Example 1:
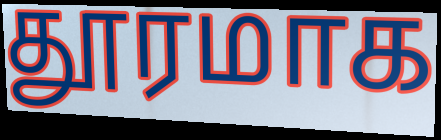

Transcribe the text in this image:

தூரமாக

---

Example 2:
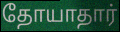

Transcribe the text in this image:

தோயாதார்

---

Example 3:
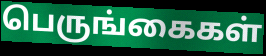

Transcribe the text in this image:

பெருங்கைகள்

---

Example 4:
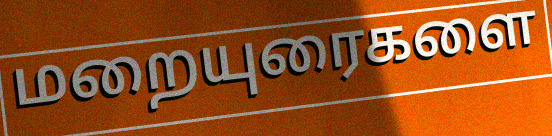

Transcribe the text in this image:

மறையுரைகளை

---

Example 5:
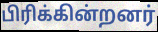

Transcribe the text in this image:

பிரிக்கின்றனர்